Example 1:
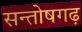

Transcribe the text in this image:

सन्तोषगढ़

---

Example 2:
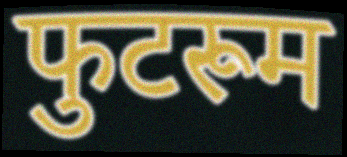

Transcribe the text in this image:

फुटरूम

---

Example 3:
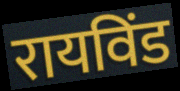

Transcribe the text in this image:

रायविंड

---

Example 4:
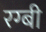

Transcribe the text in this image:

रग्‍बी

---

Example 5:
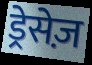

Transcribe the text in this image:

ड्रेसेज़